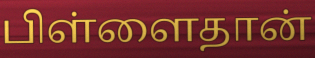
பிள்ளைதான்